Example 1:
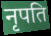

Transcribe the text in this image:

नृपति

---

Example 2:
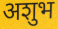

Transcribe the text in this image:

अशुभ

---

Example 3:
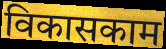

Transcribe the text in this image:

विकासकाम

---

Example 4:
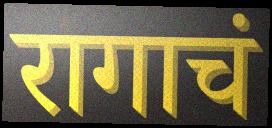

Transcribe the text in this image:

रागाचं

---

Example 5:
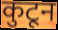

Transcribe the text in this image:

कुटून